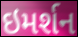
ઇમર્શન